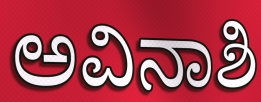
ಅವಿನಾಶಿ